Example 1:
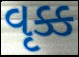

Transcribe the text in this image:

વૃક્ક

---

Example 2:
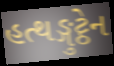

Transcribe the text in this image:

હત્થઙ્ગુટ્ઠેન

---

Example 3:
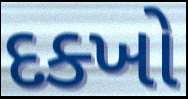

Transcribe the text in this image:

દક્ખો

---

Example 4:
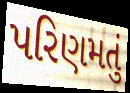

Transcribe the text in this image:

પરિણમતું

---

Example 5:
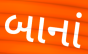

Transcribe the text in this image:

બાનાં